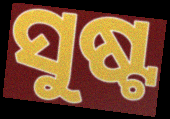
ସୁଷ୍ଟ